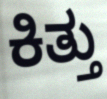
ಕಿತ್ತು